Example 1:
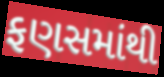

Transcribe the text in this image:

ફણસમાંથી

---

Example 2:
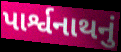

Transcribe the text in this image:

પાર્શ્વનાથનું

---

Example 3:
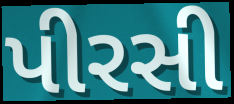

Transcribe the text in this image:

પીરસી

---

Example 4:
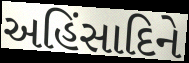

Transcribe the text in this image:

અહિંસાદિને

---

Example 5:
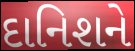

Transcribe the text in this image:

દાનિશને